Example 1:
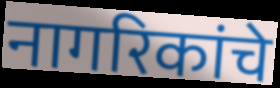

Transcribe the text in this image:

नागरिकांचे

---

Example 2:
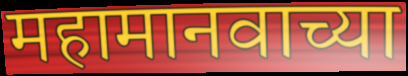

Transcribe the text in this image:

महामानवाच्या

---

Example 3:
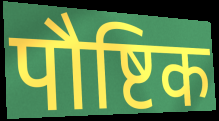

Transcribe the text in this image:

पौष्टिक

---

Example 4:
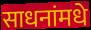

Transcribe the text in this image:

साधनांमधे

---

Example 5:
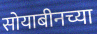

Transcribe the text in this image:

सोयाबीनच्या